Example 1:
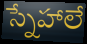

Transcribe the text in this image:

స్నేహాలే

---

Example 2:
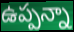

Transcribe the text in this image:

ఉప్పన్నా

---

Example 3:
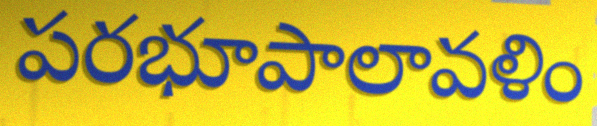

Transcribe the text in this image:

పరభూపాలావళిం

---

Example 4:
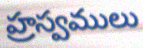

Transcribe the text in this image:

హ్రస్వములు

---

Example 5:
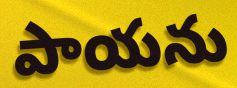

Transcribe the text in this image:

పాయను